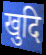
खुदि